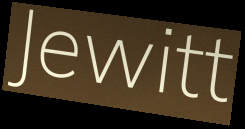
Jewitt